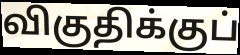
விகுதிக்குப்